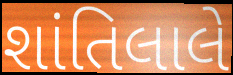
શાંતિલાલે